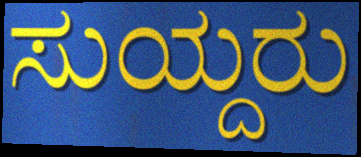
ಸುಯ್ದರು